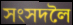
সংসদলৈ